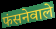
फंसनेवाले